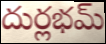
దుర్లభమ్